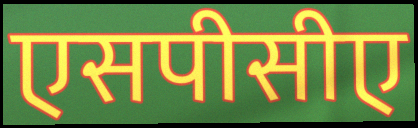
एसपीसीए